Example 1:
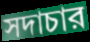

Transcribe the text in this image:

সদাচার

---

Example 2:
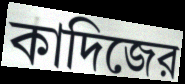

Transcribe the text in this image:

কাদিজের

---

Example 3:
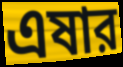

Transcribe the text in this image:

এষার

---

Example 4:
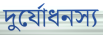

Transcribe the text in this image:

দুর্যোধনস্য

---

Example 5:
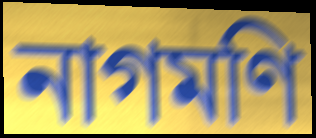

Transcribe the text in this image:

নাগমণি